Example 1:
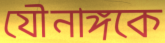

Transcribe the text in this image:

যৌনাঙ্গকে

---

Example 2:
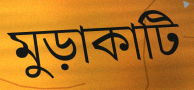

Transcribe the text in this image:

মুড়াকাটি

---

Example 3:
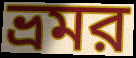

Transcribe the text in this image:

ভ্রমর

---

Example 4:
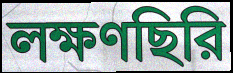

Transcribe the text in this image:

লক্ষণছিরি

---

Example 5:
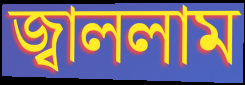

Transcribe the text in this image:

জ্বাললাম